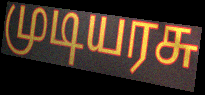
முடியரசு